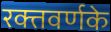
रक्तवर्णके